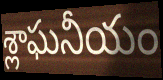
శ్లాఘనీయం